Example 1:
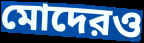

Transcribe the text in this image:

মোদেরও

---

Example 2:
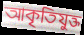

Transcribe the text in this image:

আকৃতিযুক্ত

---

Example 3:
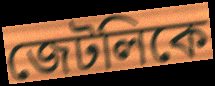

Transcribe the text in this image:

জেটলিকে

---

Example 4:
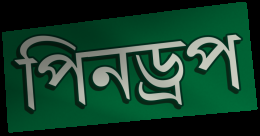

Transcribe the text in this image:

পিনড্রপ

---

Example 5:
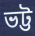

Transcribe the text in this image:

ভট্ট